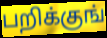
பறிக்குங்